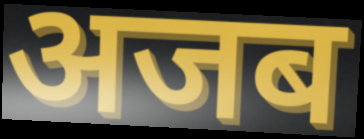
अजब